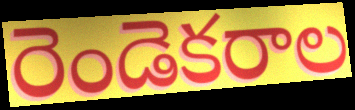
రెండెకరాల